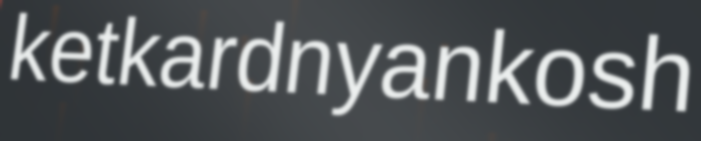
ketkardnyankosh